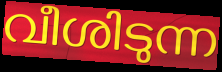
വീശിടുന്ന